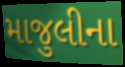
માજુલીના